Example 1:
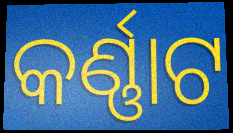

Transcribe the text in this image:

କର୍ଣ୍ଣାଟ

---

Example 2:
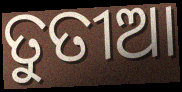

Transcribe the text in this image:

ତୁତୀଆ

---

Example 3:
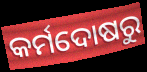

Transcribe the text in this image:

କର୍ମଦୋଷରୁ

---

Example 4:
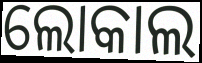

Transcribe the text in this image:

ଲୋକାଲ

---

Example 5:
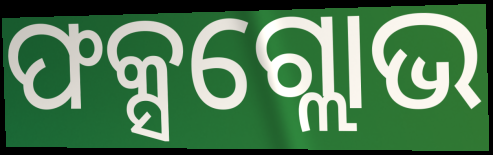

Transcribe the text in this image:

ଫକ୍ସଗ୍ଲୋଭ